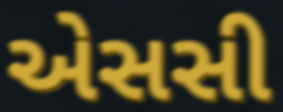
એસસી